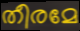
തീരമേ